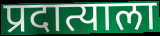
प्रदात्याला